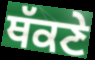
ਥੱਕਣੇ